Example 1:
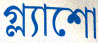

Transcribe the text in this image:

গ্ল্যাশো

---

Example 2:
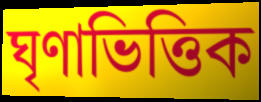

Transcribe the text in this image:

ঘৃণাভিত্তিক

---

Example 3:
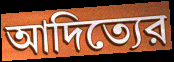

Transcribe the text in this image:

আদিত্যের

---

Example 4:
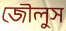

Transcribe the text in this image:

জৌলুস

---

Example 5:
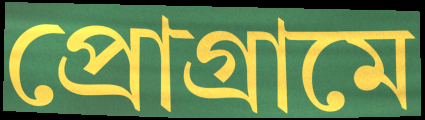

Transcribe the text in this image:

প্রোগ্রামে